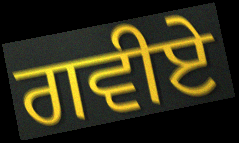
ਗਵੀਏ